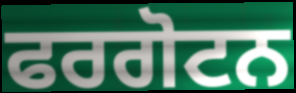
ਫਰਗੋਟਨ